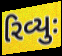
રિવ્યુઃ